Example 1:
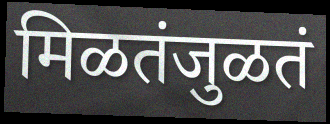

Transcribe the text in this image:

मिळतंजुळतं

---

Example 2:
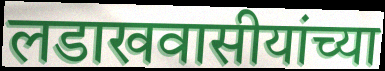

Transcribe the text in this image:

लडाखवासीयांच्या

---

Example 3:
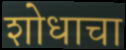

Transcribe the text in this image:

शोधाचा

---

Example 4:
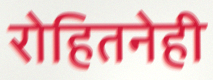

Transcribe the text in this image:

रोहितनेही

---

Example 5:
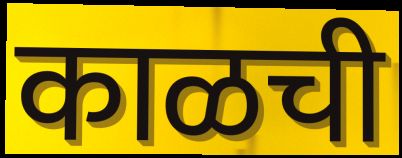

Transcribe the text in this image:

काळची